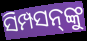
ସିମ୍ପସନ୍‍ଙ୍କୁ